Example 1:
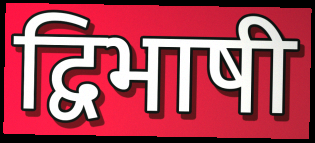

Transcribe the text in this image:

द्विभाषी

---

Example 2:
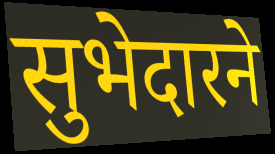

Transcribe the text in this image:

सुभेदारने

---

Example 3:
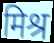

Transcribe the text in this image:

मिश्र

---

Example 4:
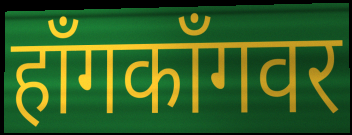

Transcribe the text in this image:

हॉंगकॉंगवर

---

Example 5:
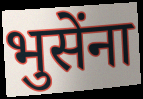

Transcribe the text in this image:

भुसेंना